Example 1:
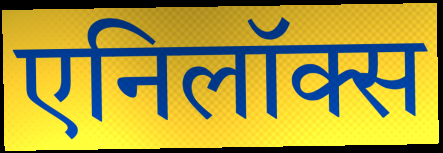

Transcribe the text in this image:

एनिलॉक्स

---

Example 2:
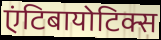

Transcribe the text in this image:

एंटिबायोटिक्स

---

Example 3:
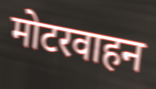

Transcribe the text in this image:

मोटरवाहन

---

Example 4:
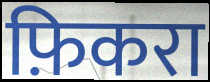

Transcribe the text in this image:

फ़िकरा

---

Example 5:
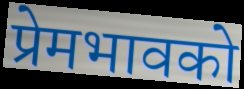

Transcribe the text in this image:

प्रेमभावको